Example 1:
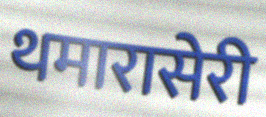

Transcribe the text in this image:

थमारासेरी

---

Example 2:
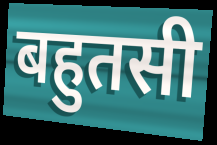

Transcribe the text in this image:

बहुतसी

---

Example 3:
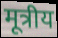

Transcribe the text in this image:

मूत्रीय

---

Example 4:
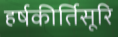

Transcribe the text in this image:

हर्षकीर्तिसूरि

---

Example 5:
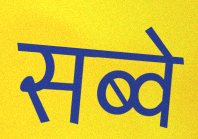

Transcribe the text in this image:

सब्वे